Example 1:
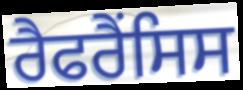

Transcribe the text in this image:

ਰੈਫਰੈਂਸਿਸ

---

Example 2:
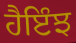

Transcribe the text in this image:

ਹੈਇੰਝ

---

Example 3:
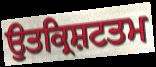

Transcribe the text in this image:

ਉਤਕ੍ਰਿਸ਼ਟਤਮ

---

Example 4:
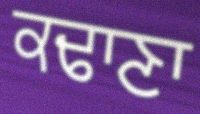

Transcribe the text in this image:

ਕਢਾਣਾ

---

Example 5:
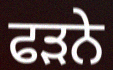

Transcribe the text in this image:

ਫੜਨੇ